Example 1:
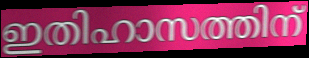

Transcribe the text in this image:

ഇതിഹാസത്തിന്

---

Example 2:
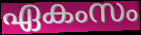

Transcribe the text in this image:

ഏകംസം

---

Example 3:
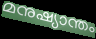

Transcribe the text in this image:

മനുഷ്യാന്തം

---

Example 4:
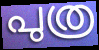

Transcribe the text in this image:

പുത്ര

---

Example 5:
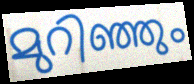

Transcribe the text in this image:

മുറിഞ്ഞും